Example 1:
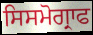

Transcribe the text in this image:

ਸਿਸਮੋਗ੍ਰਾਫ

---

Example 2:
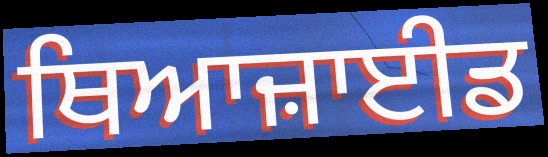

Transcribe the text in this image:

ਥਿਆਜ਼ਾਈਡ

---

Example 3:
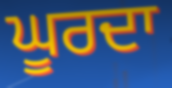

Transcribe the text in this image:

ਘੂਰਦਾ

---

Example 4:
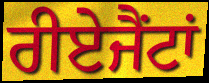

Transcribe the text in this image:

ਰੀਏਜੈਂਟਾਂ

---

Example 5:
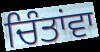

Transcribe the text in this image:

ਚਿੰਤਾਂਵਾ